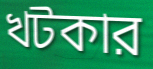
খটকার